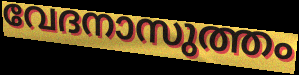
വേദനാസുത്തം